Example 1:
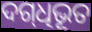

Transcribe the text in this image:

ଦଗ୍‌ଧିଭୂତ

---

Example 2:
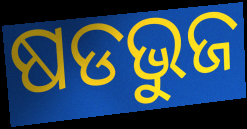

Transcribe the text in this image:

ଷଡଭୁଜ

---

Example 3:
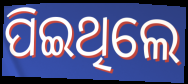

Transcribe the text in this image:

ପିଇଥିଲେ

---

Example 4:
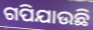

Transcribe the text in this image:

ଗପିଯାଉଛି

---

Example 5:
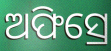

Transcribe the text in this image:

ଅଫିସ୍ରେ